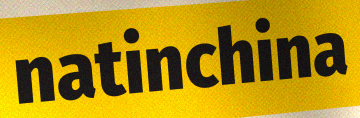
natinchina